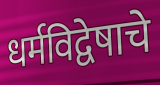
धर्मविद्वेषाचे